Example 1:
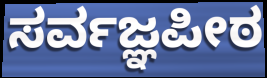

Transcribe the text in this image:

ಸರ್ವಜ್ಞಪೀಠ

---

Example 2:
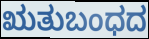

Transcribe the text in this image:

ಋತುಬಂಧದ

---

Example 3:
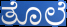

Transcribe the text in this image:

ತೊಲೆ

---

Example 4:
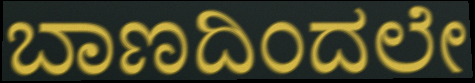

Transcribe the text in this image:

ಬಾಣದಿಂದಲೇ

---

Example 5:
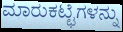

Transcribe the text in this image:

ಮಾರುಕಟ್ಟೆಗಳನ್ನು